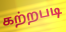
கற்றபடி